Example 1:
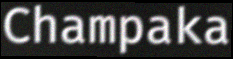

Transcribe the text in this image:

Champaka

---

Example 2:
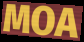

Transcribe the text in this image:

MOA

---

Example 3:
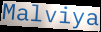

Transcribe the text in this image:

Malviya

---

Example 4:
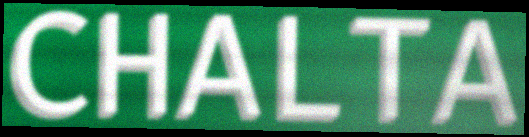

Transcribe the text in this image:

CHALTA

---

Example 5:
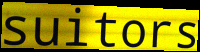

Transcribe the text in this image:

suitors